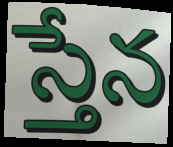
స్తేన